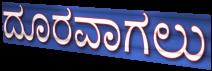
ದೂರವಾಗಲು